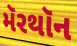
મૅરથૉન